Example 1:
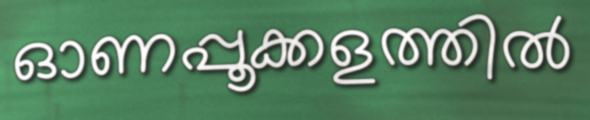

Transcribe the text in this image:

ഓണപ്പൂക്കളത്തിൽ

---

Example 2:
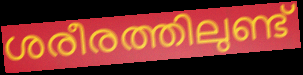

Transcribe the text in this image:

ശരീരത്തിലുണ്ട്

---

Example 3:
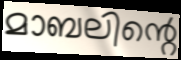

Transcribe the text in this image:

മാബലിന്റെ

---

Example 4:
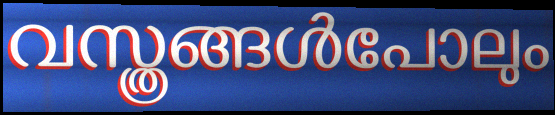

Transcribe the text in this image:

വസ്ത്രങ്ങൾപോലും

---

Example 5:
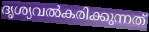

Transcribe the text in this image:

ദൃശ്യവൽകരിക്കുന്നത്